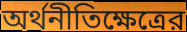
অর্থনীতিক্ষেত্রের